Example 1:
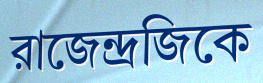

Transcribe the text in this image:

রাজেন্দ্রজিকে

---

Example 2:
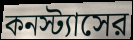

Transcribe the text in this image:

কনস্ট্যাসের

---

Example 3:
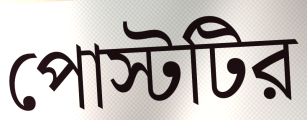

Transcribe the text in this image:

পোস্টটির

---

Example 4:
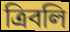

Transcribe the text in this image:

ত্রিবলি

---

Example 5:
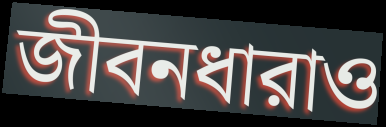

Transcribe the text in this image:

জীবনধারাও